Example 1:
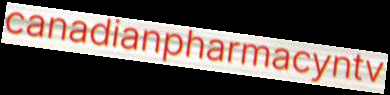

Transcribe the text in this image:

canadianpharmacyntv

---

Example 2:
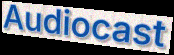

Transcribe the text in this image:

Audiocast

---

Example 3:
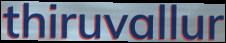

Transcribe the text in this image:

thiruvallur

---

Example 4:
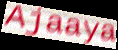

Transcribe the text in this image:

Ajaaya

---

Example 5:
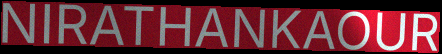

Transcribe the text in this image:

NIRATHANKAOUR